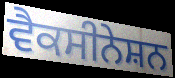
ਵੈਕਸੀਨੇਸ਼ਨ